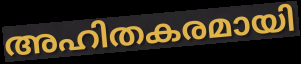
അഹിതകരമായി